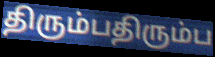
திரும்பதிரும்ப